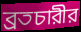
ব্রতচারীর